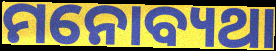
ମନୋବ୍ୟଥା